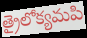
త్రైలోక్యమపి